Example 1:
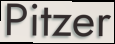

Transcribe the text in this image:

Pitzer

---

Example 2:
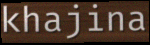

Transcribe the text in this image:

khajina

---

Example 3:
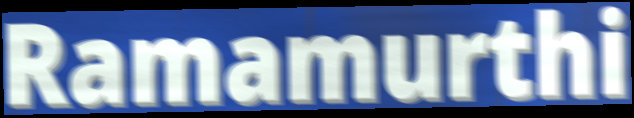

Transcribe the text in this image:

Ramamurthi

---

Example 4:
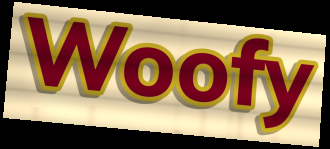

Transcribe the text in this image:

Woofy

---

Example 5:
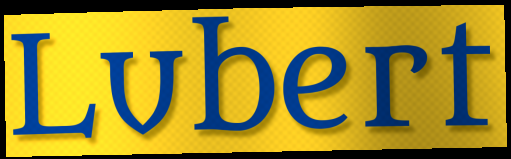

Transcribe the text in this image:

Lubert